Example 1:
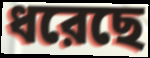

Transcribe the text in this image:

ধরেছে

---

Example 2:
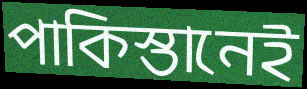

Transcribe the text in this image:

পাকিস্তানেই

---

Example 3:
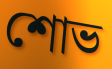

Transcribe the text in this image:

শোভ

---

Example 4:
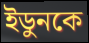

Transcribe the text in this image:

ইডুনকে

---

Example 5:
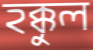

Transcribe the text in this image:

হক্কুল